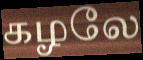
கழலே